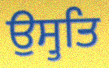
ਉਸ੍ਤਤਿ